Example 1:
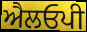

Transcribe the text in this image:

ਐਲਓਪੀ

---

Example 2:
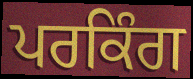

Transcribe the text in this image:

ਪਰਕਿੰਗ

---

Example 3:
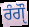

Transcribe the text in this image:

ਰੰਗੵੌ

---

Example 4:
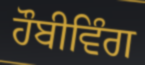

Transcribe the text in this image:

ਹੌਬੀਵਿੰਗ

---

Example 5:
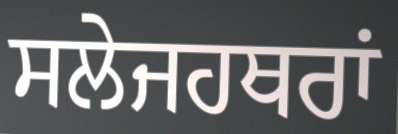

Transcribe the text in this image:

ਸਲੇਜਹਥਰਾਂ